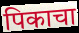
पिकाचा